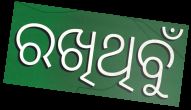
ରଖିଥିବୁଁ